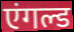
एंगल्ड